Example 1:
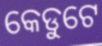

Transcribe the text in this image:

କେଡୁଟେ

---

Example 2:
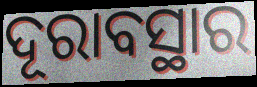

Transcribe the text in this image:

ଦୂରାବସ୍ଥାର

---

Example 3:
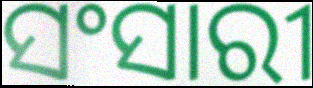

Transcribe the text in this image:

ସଂସାରୀ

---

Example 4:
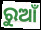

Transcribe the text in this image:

ରୁଆଁ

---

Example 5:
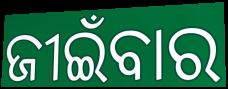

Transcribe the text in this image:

ଜୀଇଁବାର